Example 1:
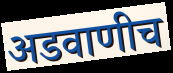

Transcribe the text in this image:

अडवाणीच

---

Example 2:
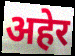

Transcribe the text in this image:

अहेर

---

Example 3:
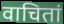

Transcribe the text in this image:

वाचितां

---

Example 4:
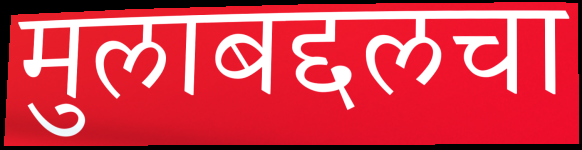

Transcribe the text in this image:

मुलाबद्दलचा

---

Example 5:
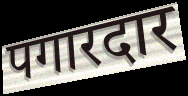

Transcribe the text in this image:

पगारदार